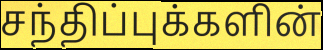
சந்திப்புக்களின்